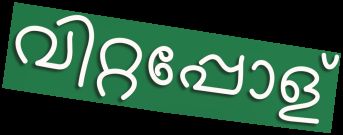
വിറ്റപ്പോള്